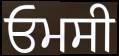
ਓਮਸੀ